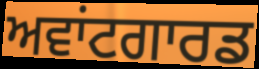
ਅਵਾਂਟਗਾਰਡ